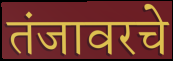
तंजावरचे